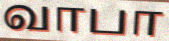
வாபா